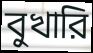
বুখারি